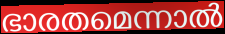
ഭാരതമെന്നാൽ